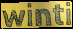
winti